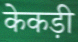
केकड़ी